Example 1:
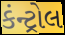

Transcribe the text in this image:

કંન્ટ્રોલ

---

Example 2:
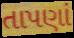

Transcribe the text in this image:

તાપણાં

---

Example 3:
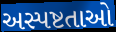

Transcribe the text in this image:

અસ્પષ્ટતાઓ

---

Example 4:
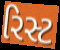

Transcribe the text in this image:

રિસ્ટ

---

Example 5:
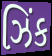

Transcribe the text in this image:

ઝિંક